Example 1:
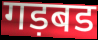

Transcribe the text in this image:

गड़बड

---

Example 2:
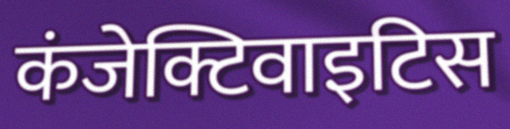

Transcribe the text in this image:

कंजेक्टिवाइटिस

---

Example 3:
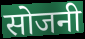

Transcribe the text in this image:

सोजनी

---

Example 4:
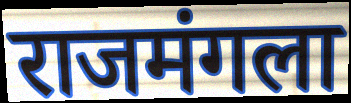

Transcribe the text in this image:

राजमंगला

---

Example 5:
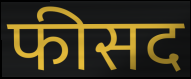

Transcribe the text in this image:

फीसद